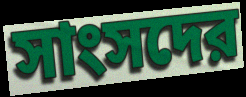
সাংসদের